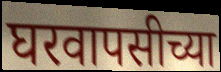
घरवापसीच्या